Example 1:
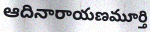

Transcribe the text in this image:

ఆదినారాయణమూర్తి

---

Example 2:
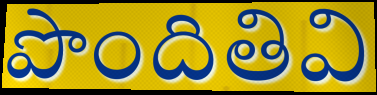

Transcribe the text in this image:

పొందితివి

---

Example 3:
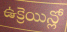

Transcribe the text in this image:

ఉక్రెయిన్లో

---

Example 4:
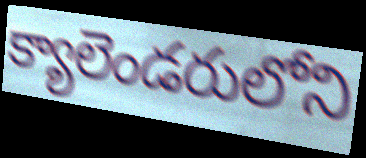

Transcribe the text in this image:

క్యాలెండరులోని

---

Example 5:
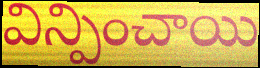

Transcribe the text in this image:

విన్పించాయి